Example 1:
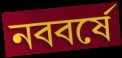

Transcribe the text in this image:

নববর্ষে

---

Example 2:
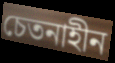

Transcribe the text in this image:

চেতনাহীন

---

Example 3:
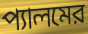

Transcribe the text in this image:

প্যালমের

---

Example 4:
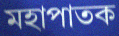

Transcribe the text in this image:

মহাপাতক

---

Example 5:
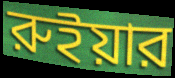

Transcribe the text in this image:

রুইয়ার